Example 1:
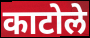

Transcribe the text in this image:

काटोले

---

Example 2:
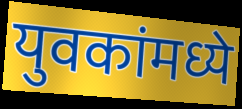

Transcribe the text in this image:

युवकांमध्ये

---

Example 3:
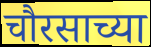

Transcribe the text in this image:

चौरसाच्या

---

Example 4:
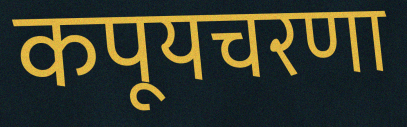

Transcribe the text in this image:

कपूयचरणा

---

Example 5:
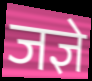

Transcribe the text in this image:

जज्ञे